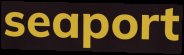
seaport